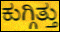
ಕುಗ್ಗಿತ್ತು